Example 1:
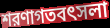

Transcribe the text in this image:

শরণাগতবৎসলা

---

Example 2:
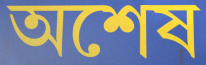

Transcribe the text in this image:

অশেষ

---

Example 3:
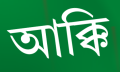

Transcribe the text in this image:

আক্কি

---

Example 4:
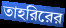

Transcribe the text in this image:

তাহরিরের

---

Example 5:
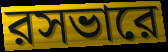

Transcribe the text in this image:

রসভারে